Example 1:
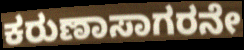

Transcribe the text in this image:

ಕರುಣಾಸಾಗರನೇ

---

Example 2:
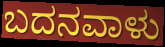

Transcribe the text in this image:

ಬದನವಾಳು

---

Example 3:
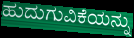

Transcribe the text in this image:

ಹುದುಗುವಿಕೆಯನ್ನು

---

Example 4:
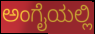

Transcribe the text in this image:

ಅಂಗೈಯಲ್ಲಿ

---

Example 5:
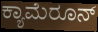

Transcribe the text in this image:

ಕ್ಯಾಮೆರೂನ್